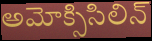
అమోక్సిసిలిన్